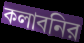
কলাবনির